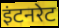
इंटनरेट